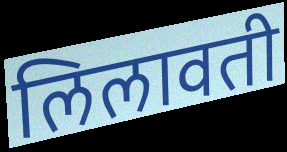
लिलावती